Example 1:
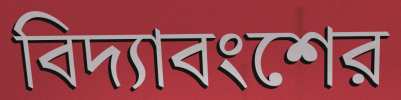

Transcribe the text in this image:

বিদ্যাবংশের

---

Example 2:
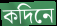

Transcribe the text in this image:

কদিনে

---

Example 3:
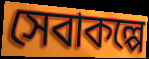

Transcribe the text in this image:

সেবাকল্পে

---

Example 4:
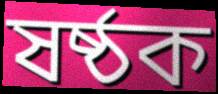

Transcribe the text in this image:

ষষ্ঠক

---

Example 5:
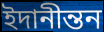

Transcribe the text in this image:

ইদানীন্তন